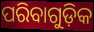
ପରିବାଗୁଡ଼ିକ